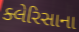
ક્લેરિસાના